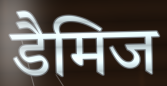
डैमिज